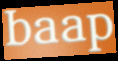
baap